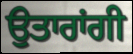
ਉਤਾਰਾਂਗੀ